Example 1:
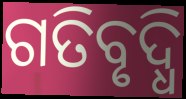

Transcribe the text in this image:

ଗତିବୃଦ୍ଧି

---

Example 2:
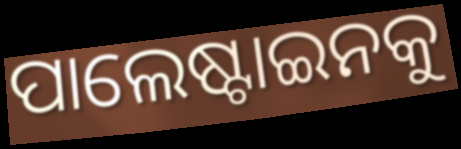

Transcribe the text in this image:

ପାଲେଷ୍ଟାଇନକୁ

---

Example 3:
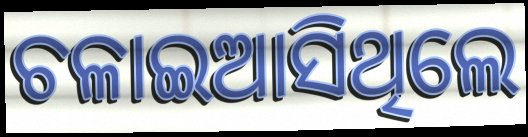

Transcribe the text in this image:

ଚଳାଇଆସିଥିଲେ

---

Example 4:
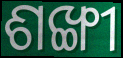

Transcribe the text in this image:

ଶଙ୍ଖୀ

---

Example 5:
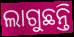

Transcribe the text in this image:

ଲାଗୁଛନ୍ତି